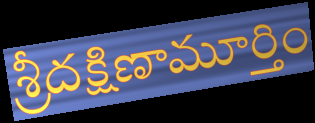
శ్రీదక్షిణామూర్తిం